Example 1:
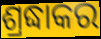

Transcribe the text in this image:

ଶ୍ରଦ୍ଧାକର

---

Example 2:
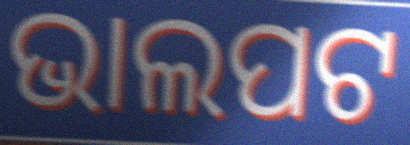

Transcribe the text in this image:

ଭାଲପଟ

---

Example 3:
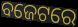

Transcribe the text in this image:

ବଜେଟରେ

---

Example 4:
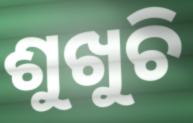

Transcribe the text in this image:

ଶୁଖୁଚି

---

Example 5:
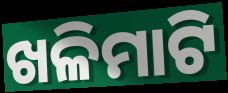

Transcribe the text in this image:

ଖଳିମାଟି